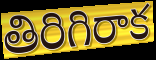
తిరిగిరాక